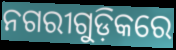
ନଗରୀଗୁଡ଼ିକରେ